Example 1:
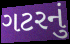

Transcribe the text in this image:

ગટરનું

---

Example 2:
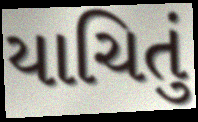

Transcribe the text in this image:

યાચિતું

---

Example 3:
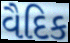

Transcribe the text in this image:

વૈદિક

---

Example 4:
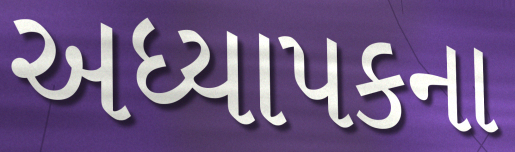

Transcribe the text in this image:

અધ્યાપકના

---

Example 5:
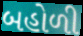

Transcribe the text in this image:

બહોળી